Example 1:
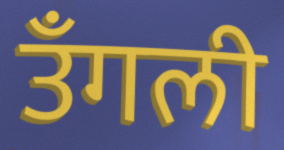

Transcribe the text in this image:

उँगली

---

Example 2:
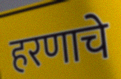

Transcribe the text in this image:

हरणाचे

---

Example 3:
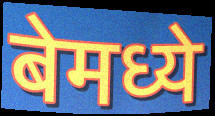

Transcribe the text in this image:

बेमध्ये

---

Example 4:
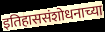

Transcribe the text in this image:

इतिहाससंशोधनाच्या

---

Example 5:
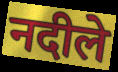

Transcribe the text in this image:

नदीले